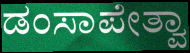
ಡಂಸಾಪೇತ್ವಾ